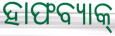
ହାଫବ୍ୟାକ୍